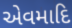
એવમાદિ